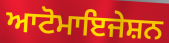
ਆਟੋਮਾਇਜੇਸ਼ਨ